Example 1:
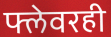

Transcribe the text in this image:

फ्लेवरही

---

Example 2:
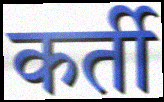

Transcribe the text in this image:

कर्ती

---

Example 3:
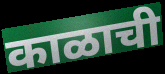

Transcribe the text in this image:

काळाची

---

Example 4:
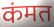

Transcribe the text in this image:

कंमत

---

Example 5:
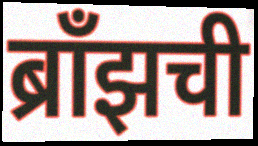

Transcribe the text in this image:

ब्राँझची